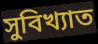
সুবিখ্যাত